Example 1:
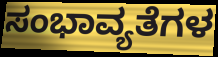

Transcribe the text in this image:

ಸಂಭಾವ್ಯತೆಗಳ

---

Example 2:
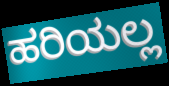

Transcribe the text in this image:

ಹರಿಯಲ್ಲ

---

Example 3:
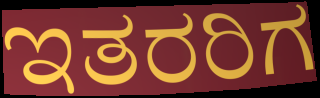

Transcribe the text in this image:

ಇತರರಿಗ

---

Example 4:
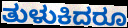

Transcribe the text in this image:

ತುಳುಕಿದರೂ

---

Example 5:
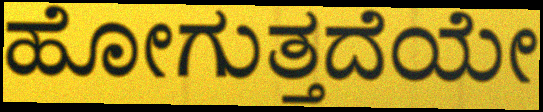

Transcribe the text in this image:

ಹೋಗುತ್ತದೆಯೇ